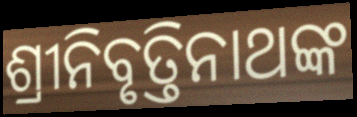
ଶ୍ରୀନିବୃତ୍ତିନାଥଙ୍କ